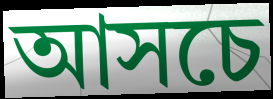
আসচে